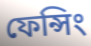
ফেন্সিং